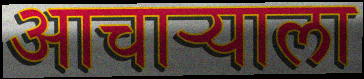
आचाऱ्याला